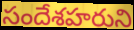
సందేశహరుని